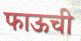
फाऊची